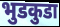
भुडकुडा